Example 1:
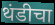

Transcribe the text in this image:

थंडीचा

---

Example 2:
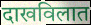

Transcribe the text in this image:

दाखविलात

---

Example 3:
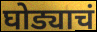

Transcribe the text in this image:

घोड्याचं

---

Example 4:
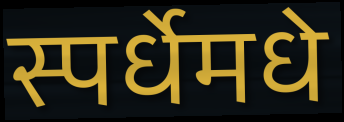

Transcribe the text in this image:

स्पर्धेमधे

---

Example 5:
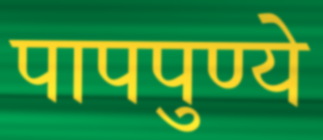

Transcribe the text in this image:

पापपुण्ये